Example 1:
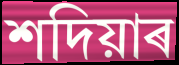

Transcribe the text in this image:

শদিয়াৰ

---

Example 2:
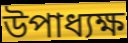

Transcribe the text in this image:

উপাধ্যক্ষ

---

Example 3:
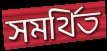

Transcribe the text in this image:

সমৰ্থিত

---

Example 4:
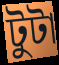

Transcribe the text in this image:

টুটা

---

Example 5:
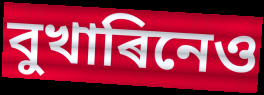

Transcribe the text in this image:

বুখাৰিনেও